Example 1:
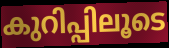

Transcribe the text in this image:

കുറിപ്പിലൂടെ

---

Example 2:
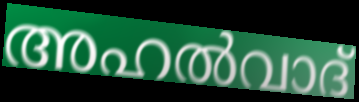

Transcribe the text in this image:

അഹൽവാദ്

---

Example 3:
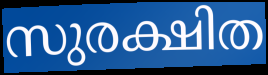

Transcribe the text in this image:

സുരക്ഷിത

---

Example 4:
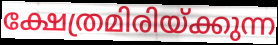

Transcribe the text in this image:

ക്ഷേത്രമിരിയ്ക്കുന്ന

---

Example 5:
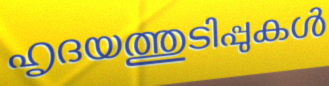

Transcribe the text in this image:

ഹൃദയത്തുടിപ്പുകൾ